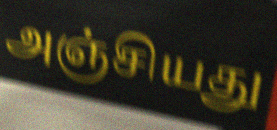
அஞ்சியது